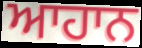
ਆਹਾਨ